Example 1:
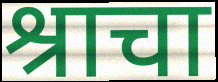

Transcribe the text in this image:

श्राचा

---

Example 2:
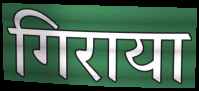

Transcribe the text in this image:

गिराया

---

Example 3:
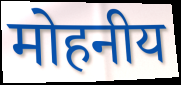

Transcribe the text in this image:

मोहनीय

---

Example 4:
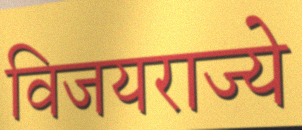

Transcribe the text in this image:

विजयराज्ये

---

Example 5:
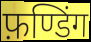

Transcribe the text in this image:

फ़ण्डिंग